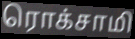
ரொக்சாமி